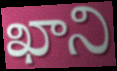
ఖాని